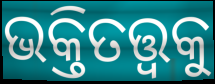
ଭକ୍ତିତତ୍ତ୍ୱକୁ